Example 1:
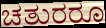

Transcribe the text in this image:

ಚತುರರೂ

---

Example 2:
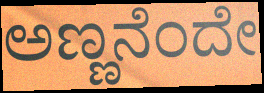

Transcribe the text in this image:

ಅಣ್ಣನೆಂದೇ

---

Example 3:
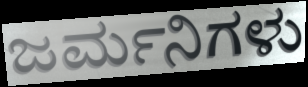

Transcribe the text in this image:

ಜರ್ಮನಿಗಳು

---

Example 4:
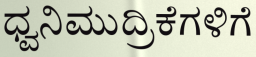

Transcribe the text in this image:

ಧ್ವನಿಮುದ್ರಿಕೆಗಳಿಗೆ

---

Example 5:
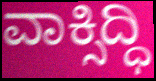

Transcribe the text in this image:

ವಾಕ್ಸಿದ್ಧಿ